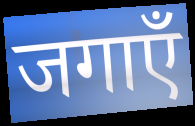
जगाएँ